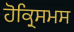
ਹੋਕ੍ਰਿਸਮਸ